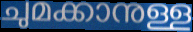
ചുമക്കാനുള്ള